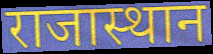
राजास्थान